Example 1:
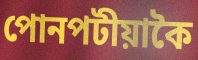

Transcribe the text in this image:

পোনপটীয়াকৈ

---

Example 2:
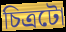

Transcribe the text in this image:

চিত্ৰটো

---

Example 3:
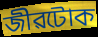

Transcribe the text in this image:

জীৱটোক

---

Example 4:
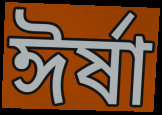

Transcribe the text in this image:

ঈৰ্ষা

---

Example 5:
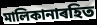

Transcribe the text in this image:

মালিকানাৰহিত